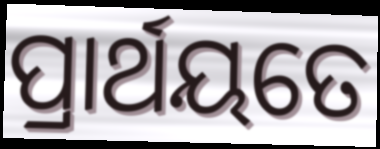
ପ୍ରାର୍ଥୟତେ